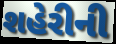
શહેરીની